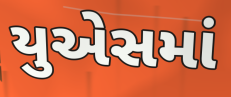
યુએસમાં